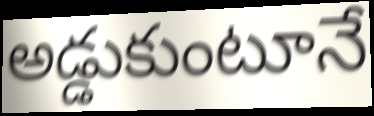
అడ్డుకుంటూనే